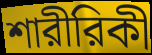
শারীরিকী